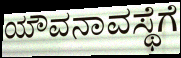
ಯೌವನಾವಸ್ಥೆಗೆ